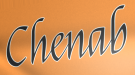
Chenab